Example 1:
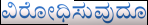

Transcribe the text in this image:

ವಿರೋಧಿಸುವುದೂ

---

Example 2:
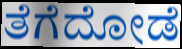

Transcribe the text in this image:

ತೆಗೆದೋಡೆ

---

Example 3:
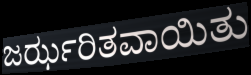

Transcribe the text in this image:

ಜರ್ಝರಿತವಾಯಿತು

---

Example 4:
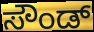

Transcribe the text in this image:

ಸೌಂಡ್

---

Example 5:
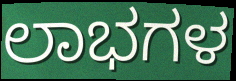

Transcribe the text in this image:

ಲಾಭಗಳ